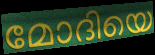
മോദിയെ